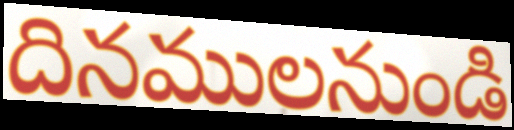
దినములనుండి